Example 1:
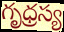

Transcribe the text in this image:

గృధ్రస్య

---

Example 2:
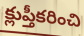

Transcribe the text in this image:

క్లుప్తీకరించి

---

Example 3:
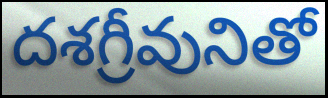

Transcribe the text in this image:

దశగ్రీవునితో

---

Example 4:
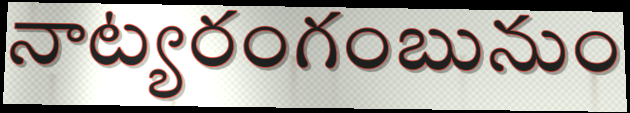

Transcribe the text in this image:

నాట్యరంగంబునుం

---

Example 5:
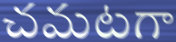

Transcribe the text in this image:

చమటగా